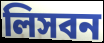
লিসবন